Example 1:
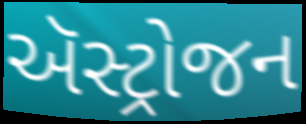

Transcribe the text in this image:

ઍસ્ટ્રોજન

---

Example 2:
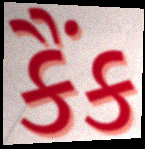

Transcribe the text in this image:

કૈંક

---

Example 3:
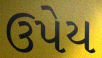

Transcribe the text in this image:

ઉપેય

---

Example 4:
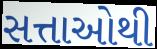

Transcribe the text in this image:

સત્તાઓથી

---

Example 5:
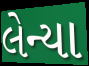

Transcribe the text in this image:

લેન્યા